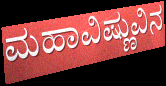
ಮಹಾವಿಷ್ಣುವಿನ